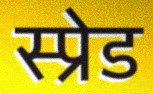
स्प्रेड